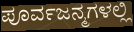
ಪೂರ್ವಜನ್ಮಗಳಲ್ಲಿ